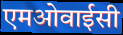
एमओवाईसी